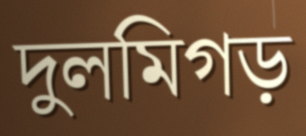
দুলমিগড়